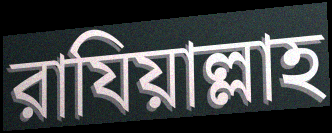
রাযিয়াল্লাহ